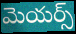
మెయర్స్